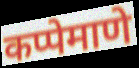
कप्पेमाणे